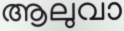
ആലുവാ